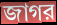
জাগর